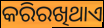
କରିରଖିଥାଏ